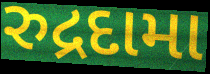
રુદ્રદામા